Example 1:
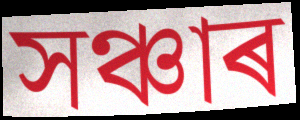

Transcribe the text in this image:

সঞ্চাৰ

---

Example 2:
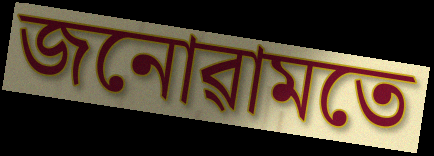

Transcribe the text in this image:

জনোৱামতে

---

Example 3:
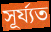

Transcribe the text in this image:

সূৰ্য্যত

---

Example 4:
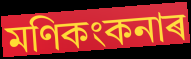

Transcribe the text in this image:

মণিকংকনাৰ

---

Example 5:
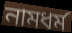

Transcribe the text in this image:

নামধৰ্ম